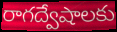
రాగద్వేషాలకు